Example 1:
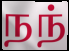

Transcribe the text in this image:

நந்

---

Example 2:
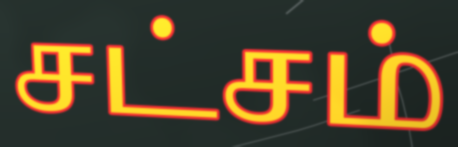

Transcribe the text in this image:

சட்சம்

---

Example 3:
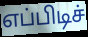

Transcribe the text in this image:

எப்பிடிச்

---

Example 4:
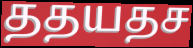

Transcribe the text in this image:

ததயதச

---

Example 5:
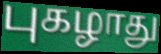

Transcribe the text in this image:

புகழாது